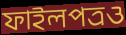
ফাইলপত্রও